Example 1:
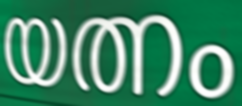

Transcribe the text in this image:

യത്നം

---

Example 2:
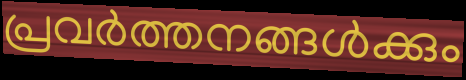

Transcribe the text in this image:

പ്രവർത്തനങ്ങൾക്കും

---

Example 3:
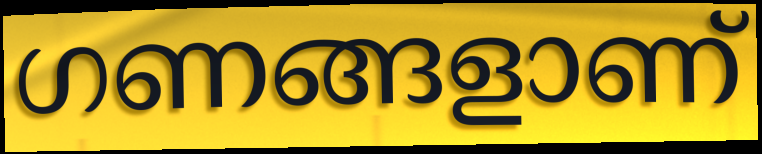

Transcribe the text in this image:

ഗണങ്ങളാണ്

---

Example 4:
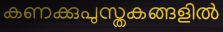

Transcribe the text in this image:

കണക്കുപുസ്തകങ്ങളിൽ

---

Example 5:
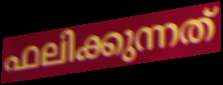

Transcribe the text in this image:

ഫലിക്കുന്നത്